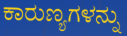
ಕಾರುಣ್ಯಗಳನ್ನು